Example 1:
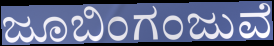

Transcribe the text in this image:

ಜೂಬಿಂಗಂಜುವೆ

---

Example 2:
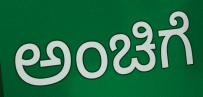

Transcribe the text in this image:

ಅಂಚಿಗೆ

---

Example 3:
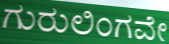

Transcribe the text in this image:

ಗುರುಲಿಂಗವೇ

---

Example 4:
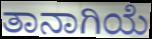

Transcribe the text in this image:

ತಾನಾಗಿಯೆ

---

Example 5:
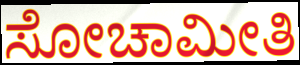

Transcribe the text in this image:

ಸೋಚಾಮೀತಿ